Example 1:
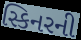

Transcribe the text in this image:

સ્કિનરની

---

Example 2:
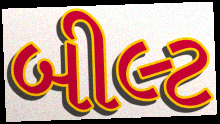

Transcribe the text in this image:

બીલ્ટ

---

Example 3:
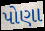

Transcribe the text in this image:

પોણા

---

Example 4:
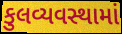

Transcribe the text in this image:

કુલવ્યવસ્થામાં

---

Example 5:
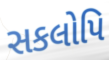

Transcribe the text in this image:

સકલોપિ